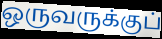
ஒருவருக்குப்